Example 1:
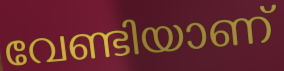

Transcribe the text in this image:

വേണ്ടിയാണ്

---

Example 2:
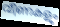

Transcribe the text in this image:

വീണകളും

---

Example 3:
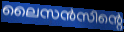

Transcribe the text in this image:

ലൈസൻസിന്റെ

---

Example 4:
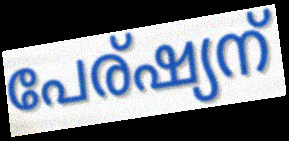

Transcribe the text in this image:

പേര്ഷ്യന്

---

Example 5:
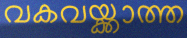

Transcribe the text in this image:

വകവയ്ക്കാത്ത